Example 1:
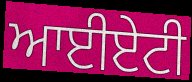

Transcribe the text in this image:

ਆਈਏਟੀ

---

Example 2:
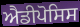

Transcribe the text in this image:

ਐਡੀਪੋਸਿਸ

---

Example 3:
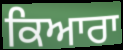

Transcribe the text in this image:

ਕਿਆਰਾ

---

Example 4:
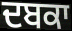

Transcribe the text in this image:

ਦਬਕਾ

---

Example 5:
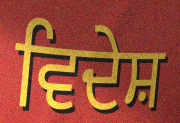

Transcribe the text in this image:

ਵਿਦੇਸ਼